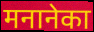
मनानेका